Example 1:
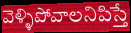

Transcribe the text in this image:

వెళ్ళిపోవాలనిపిస్తే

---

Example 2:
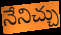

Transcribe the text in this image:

నేనిచ్చు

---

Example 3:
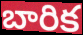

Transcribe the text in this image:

బారిక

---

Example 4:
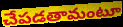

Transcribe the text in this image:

చేపడతామంటూ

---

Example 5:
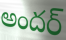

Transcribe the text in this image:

అందర్